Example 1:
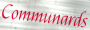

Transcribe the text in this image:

Communards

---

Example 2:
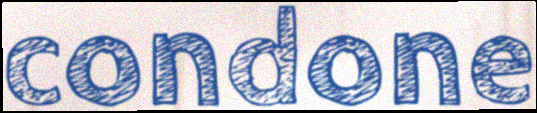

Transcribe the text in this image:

condone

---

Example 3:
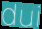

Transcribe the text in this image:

dui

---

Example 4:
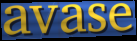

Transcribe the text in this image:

avase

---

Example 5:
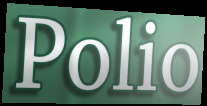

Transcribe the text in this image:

Polio